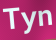
Tyn